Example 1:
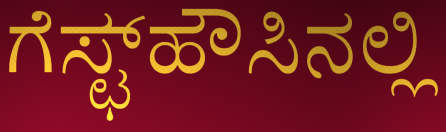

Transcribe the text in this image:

ಗೆಸ್ಟ್‌ಹೌಸಿನಲ್ಲಿ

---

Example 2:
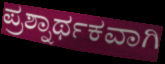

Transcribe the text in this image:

ಪ್ರಶ್ನಾರ್ಥಕವಾಗಿ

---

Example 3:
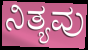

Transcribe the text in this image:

ನಿತ್ಯವು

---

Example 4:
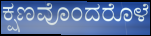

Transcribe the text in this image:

ಕ್ಷಣವೊಂದರೊಳೆ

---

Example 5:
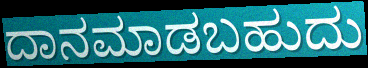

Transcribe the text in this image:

ದಾನಮಾಡಬಹುದು